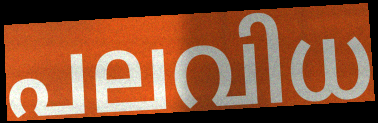
പലവിധ